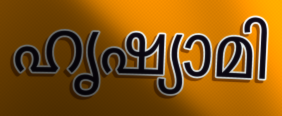
ഹൃഷ്യാമി